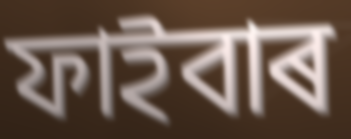
ফাইবাৰ